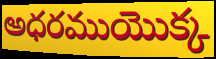
అధరముయొక్క